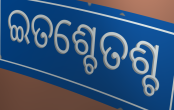
ଇତଶ୍ଚେତଶ୍ଚ